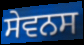
ਸੇਵਨਸ